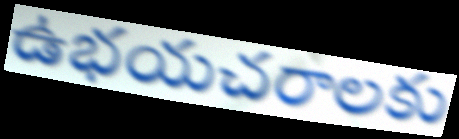
ఉభయచరాలకు